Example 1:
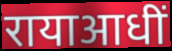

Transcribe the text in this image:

रायाआधीं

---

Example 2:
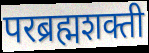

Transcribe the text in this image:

परब्रह्मशक्ती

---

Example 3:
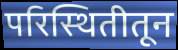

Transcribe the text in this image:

परिस्थितीतून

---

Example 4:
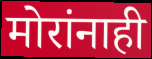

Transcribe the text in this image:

मोरांनाही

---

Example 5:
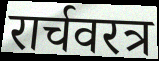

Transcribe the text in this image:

रार्चवरत्र